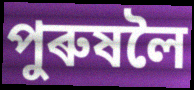
পুৰুষলৈ